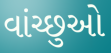
વાંચ્છુઓ